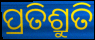
ପ୍ରତିଶ୍ରୁତି